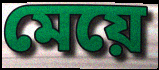
মেয়ে